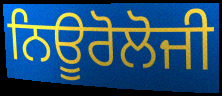
ਨਿਊਰੋਲੋਜੀ